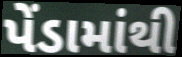
પેંડામાંથી